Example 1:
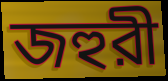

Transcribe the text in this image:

জহুরী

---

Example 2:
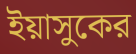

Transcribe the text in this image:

ইয়াসুকের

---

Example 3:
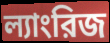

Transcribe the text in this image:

ল্যাংরিজ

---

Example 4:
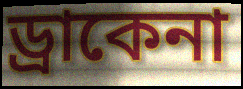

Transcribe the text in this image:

ড্রাকেনা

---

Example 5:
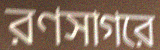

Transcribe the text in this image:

রণসাগরে